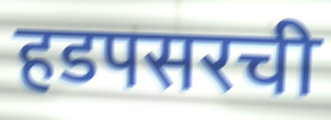
हडपसरची